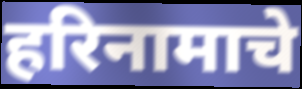
हरिनामाचे